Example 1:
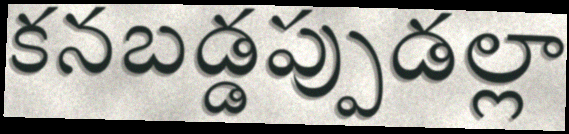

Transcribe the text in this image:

కనబడ్డప్పుడల్లా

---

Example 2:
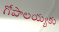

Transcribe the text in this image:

గోపాలయ్యకు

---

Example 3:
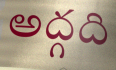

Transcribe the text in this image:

అద్గది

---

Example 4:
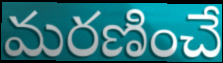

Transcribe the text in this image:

మరణించే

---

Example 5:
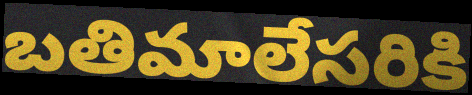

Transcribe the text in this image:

బతిమాలేసరికి